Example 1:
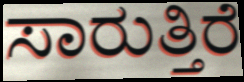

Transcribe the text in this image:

ಸಾರುತ್ತಿರೆ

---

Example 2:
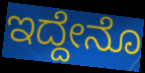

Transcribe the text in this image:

ಇದ್ದೇನೊ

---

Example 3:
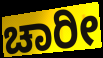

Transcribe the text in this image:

ಚಾರೀ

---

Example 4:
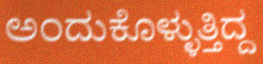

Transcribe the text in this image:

ಅಂದುಕೊಳ್ಳುತ್ತಿದ್ದ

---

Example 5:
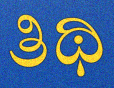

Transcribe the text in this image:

ತಿಥಿ